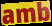
amb